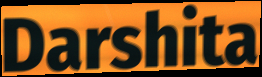
Darshita